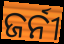
ଜର୍ନୀ